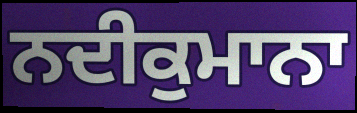
ਨਦੀਕੁਮਾਨਾ